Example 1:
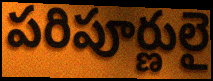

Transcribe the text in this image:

పరిపూర్ణులై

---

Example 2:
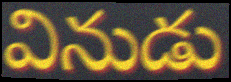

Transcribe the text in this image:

వినుడు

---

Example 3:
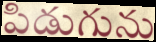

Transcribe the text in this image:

పిడుగును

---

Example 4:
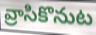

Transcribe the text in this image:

వ్రాసికొనుట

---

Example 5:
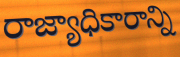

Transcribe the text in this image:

రాజ్యాధికారాన్ని